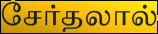
சேர்தலால்